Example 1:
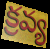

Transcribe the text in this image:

క్రవ్య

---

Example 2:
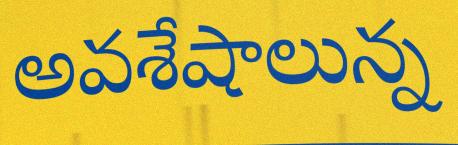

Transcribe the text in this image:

అవశేషాలున్న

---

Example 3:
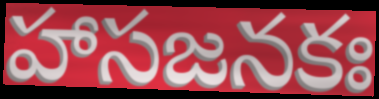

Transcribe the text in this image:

హాసజనకః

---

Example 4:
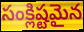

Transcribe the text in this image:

సంక్లిష్టమైన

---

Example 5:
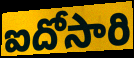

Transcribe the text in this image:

ఐదోసారి